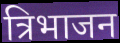
त्रिभाजन